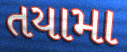
તયામા